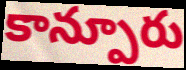
కాన్పూరు